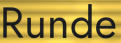
Runde